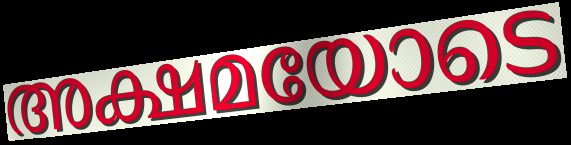
അക്ഷമയോടെ